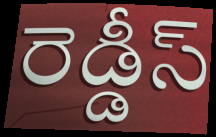
రెడ్డీస్